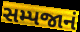
સમ્પજાનં